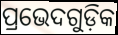
ପ୍ରଭେଦଗୁଡ଼ିକ